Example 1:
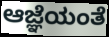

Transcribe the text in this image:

ಆಜ್ಞೆಯಂತೆ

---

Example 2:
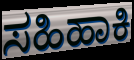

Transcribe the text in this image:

ಸಹಿಹಾಕಿ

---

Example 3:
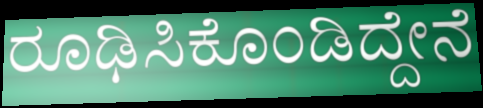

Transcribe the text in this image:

ರೂಢಿಸಿಕೊಂಡಿದ್ದೇನೆ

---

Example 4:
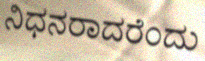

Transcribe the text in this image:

ನಿಧನರಾದರೆಂದು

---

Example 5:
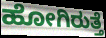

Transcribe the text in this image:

ಹೋಗಿರುತ್ತೆ